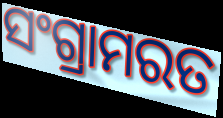
ସଂଗ୍ରାମରତ